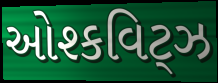
ઓશ્કવિટ્ઝ